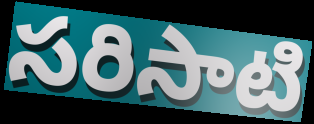
సరిసాటి